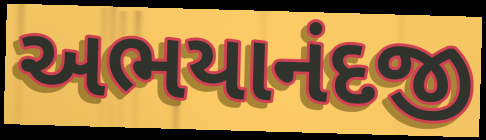
અભયાનંદજી